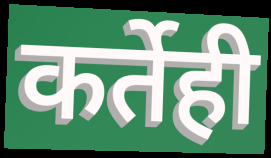
कर्तेही